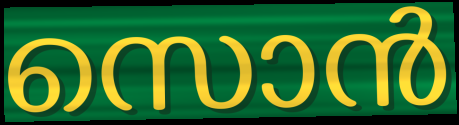
സൊൻ